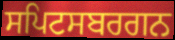
ਸਪਿਟਸਬਰਗਨ